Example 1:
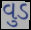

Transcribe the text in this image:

વુડ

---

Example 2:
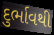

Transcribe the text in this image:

દુર્ભાવથી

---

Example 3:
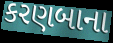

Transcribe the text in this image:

કરણબાના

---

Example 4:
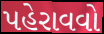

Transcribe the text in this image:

પહેરાવવો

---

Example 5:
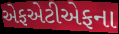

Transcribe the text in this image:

એફએટીએફના